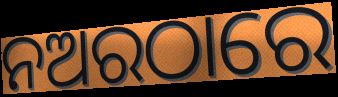
ନଅରଠାରେ